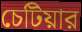
চেটিয়ার